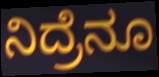
ನಿದ್ರೆನೂ